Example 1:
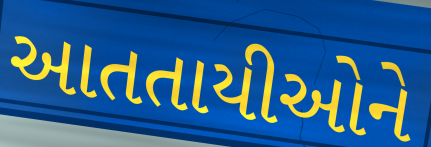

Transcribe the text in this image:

આતતાયીઓને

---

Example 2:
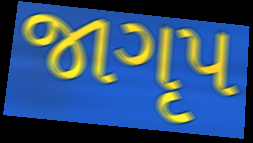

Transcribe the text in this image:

જાગૃપ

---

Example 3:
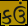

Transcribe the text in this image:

કઉં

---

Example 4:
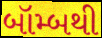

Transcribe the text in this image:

બૉમ્બથી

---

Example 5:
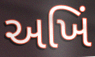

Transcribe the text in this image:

અખિં